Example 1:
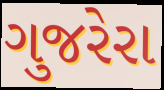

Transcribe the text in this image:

ગુજરેરા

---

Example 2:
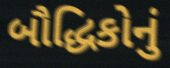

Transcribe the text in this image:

બૌદ્ધિકોનું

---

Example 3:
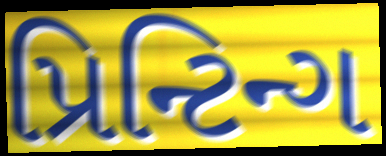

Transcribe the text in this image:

પ્રિન્ટિન્ગ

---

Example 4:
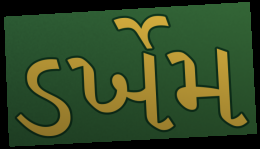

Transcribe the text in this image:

ડર્ખેમ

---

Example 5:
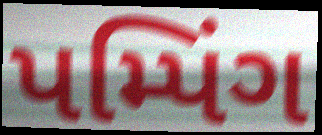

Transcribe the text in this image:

પમ્પિંગ